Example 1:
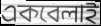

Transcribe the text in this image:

একবেলাই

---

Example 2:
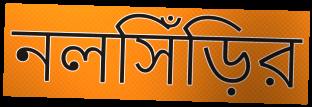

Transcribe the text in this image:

নলসিঁড়ির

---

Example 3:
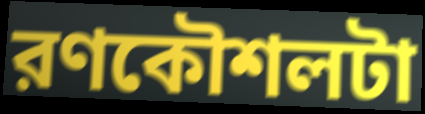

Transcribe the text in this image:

রণকৌশলটা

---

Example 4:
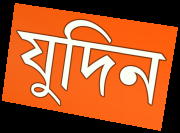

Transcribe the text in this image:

যুদিন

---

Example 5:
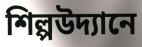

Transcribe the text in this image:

শিল্পউদ্যানে